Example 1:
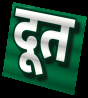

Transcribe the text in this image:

दूत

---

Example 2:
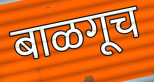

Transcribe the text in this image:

बाळगूच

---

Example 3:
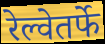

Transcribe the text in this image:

रेल्वेतर्फे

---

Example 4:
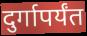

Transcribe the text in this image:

दुर्गापर्यंत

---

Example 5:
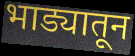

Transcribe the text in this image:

भाड्यातून